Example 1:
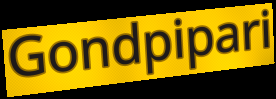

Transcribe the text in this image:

Gondpipari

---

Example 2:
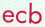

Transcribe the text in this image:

ecb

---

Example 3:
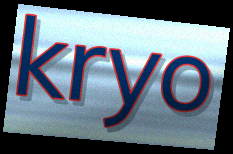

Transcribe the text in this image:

kryo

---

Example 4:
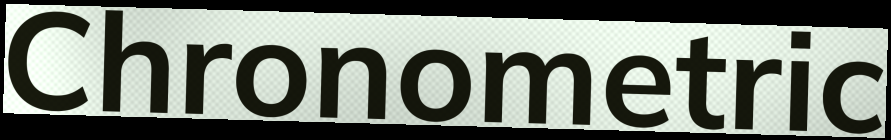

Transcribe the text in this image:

Chronometric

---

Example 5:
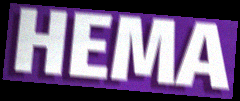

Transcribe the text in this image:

HEMA